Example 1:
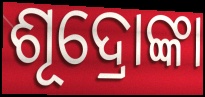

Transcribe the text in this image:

ଶୂଦ୍ରୋଙ୍କା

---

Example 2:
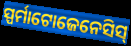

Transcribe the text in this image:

ସ୍ପର୍ମାଟୋଜେନେସିସ୍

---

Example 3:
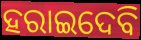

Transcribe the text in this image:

ହରାଇଦେବି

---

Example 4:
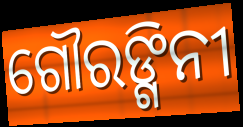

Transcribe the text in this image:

ଗୌରଙ୍ଗିନୀ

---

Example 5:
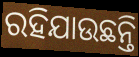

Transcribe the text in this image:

ରହିଯାଉଛନ୍ତି